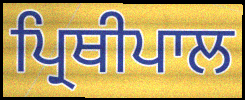
ਪ੍ਰਿਥੀਪਾਲ